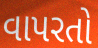
વાપરતો